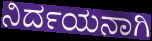
ನಿರ್ದಯನಾಗಿ